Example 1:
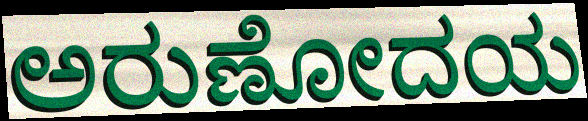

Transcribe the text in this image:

ಅರುಣೋದಯ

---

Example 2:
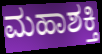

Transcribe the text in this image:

ಮಹಾಶಕ್ತಿ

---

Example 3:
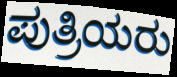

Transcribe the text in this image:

ಪುತ್ರಿಯರು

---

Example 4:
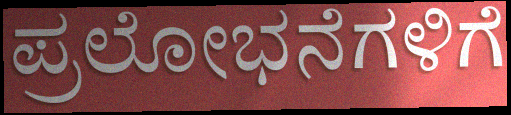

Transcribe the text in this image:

ಪ್ರಲೋಭನೆಗಳಿಗೆ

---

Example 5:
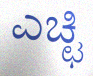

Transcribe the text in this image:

ಎಚ್ಟಿ